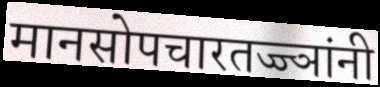
मानसोपचारतज्ज्ञांनी